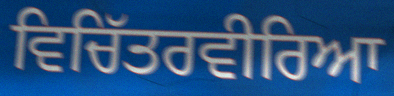
ਵਿਚਿੱਤਰਵੀਰਿਆ